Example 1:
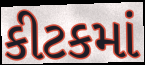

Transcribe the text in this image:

કીટકમાં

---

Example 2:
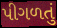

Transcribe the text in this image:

પીગળતું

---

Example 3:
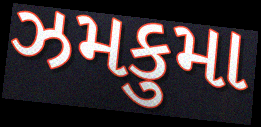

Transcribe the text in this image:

ઝમકુમા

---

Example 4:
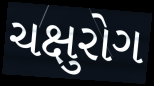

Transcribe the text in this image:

ચક્ષુરોગ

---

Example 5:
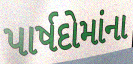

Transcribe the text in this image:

પાર્ષદોમાંના